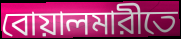
বোয়ালমারীতে